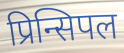
प्रिन्सिपल